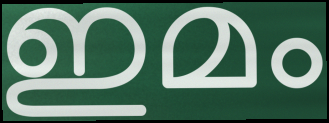
ഇമം